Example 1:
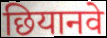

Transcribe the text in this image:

छियानवे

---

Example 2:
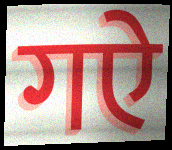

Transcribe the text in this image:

गऐ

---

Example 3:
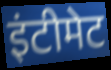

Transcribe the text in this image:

इंटीमेट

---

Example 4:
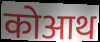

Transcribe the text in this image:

कोआथ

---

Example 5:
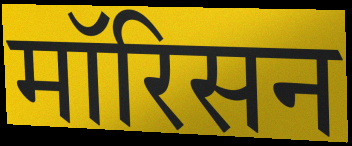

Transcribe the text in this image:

मॉरिसन